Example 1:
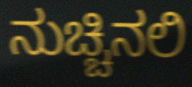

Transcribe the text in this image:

ನುಚ್ಚಿನಲಿ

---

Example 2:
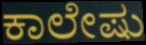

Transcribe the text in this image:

ಕಾಲೇಷು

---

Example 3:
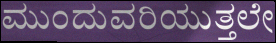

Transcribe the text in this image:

ಮುಂದುವರಿಯುತ್ತಲೇ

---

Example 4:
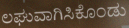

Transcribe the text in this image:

ಲಘುವಾಗಿಸಿಕೊಂಡು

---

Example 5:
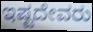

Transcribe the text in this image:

ಇಷ್ಟದೇವರು